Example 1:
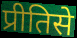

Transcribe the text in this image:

प्रीतिसे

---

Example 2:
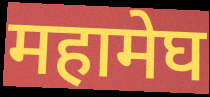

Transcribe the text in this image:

महामेघ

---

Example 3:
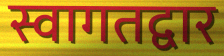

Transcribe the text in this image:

स्वागतद्वार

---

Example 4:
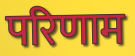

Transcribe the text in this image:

परिणाम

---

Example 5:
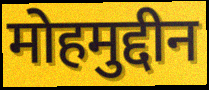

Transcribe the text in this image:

मोहमुद्दीन